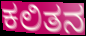
ಕಲಿತನ